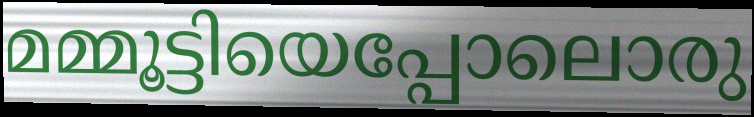
മമ്മൂട്ടിയെപ്പോലൊരു